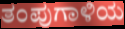
ತಂಪುಗಾಳಿಯ